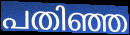
പതിഞ്ഞ